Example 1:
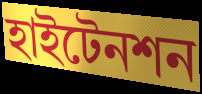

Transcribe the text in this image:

হাইটেনশন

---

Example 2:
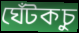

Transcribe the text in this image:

ঘেঁটকচু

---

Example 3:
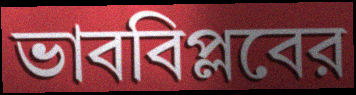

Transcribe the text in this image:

ভাববিপ্লবের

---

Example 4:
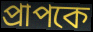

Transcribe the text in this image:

প্রাপকে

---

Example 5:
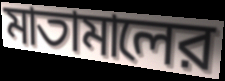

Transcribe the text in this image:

মাতামালের